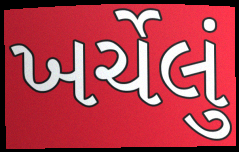
ખર્ચેલું